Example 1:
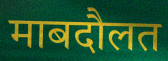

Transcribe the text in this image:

माबदौलत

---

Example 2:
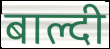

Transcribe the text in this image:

बाल्दी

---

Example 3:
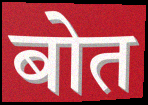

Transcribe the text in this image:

बोत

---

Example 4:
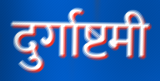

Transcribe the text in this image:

दुर्गाष्टमी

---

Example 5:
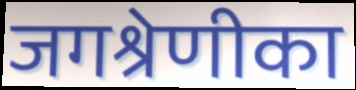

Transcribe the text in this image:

जगश्रेणीका